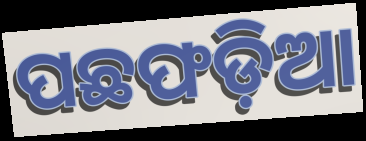
ପଛଫଡ଼ିଆ